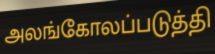
அலங்கோலப்படுத்தி